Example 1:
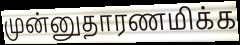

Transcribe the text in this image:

முன்னுதாரணமிக்க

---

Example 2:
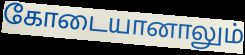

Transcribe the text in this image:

கோடையானாலும்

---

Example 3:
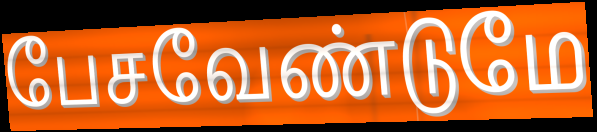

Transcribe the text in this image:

பேசவேண்டுமே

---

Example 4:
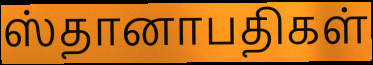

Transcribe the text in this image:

ஸ்தானாபதிகள்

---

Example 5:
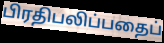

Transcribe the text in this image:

பிரதிபலிப்பதைப்